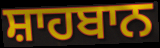
ਸ਼ਾਹਬਾਨ